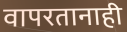
वापरतानाही